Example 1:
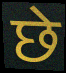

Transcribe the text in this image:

छे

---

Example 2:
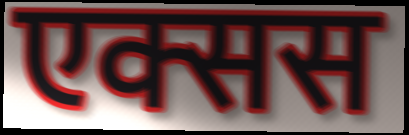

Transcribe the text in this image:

एक्सस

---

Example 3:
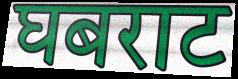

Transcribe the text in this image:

घबराट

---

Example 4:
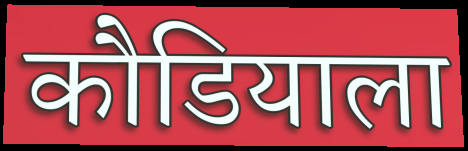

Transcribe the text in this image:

कौडियाला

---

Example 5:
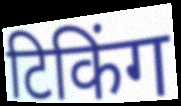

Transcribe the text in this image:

टिकिंग